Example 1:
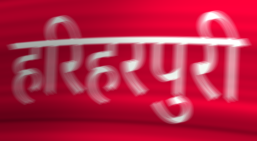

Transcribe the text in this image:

हरिहरपुरी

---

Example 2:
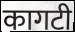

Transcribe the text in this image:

कागटी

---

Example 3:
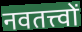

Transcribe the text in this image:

नवतत्त्वों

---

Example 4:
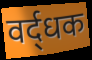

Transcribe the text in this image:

वर्द्धक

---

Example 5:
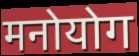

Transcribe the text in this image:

मनोयोग